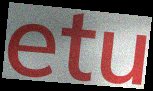
etu